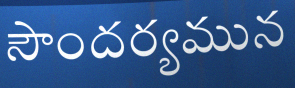
సౌందర్యమున